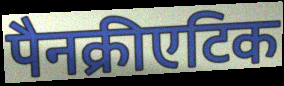
पैनक्रीएटिक